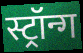
स्ट्रॉन्ग